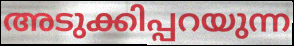
അടുക്കിപ്പറയുന്ന